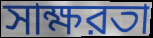
সাক্ষরতা